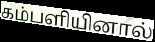
கம்பளியினால்